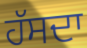
ਹੱਸਦਾ